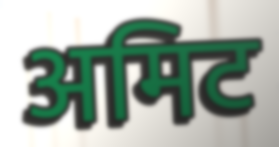
अमिट